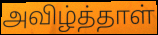
அவிழ்த்தாள்